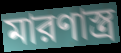
মারণাস্ত্র